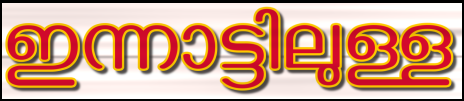
ഇന്നാട്ടിലുള്ള